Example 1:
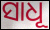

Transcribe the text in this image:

ସାଧୂ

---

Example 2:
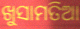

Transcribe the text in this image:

ଖୁସାମତିଆ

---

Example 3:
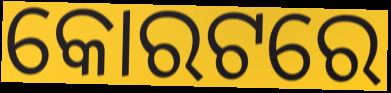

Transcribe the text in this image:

କୋରଟରେ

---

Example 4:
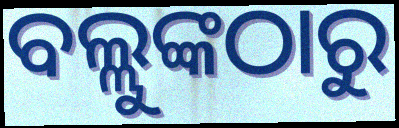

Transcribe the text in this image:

ବଲ୍ଲୁଙ୍କଠାରୁ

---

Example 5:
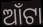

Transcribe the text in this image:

ଆଁଟା